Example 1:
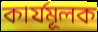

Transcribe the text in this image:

কার্যমূলক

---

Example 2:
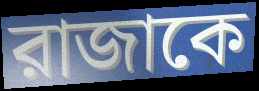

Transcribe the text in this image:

রাজাকে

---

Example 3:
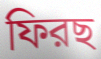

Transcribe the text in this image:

ফিরছ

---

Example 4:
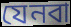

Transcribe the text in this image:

যেনবা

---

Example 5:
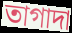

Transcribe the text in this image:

তাগাদা